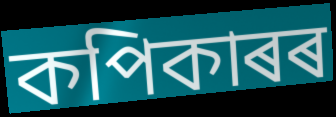
কপিকাৰৰ